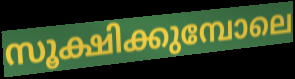
സൂക്ഷിക്കുമ്പോലെ